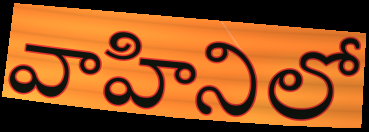
వాహినిలో